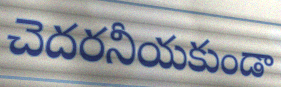
చెదరనీయకుండా